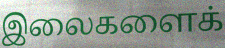
இலைகளைக்